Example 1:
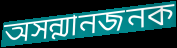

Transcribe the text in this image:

অসন্মানজনক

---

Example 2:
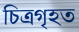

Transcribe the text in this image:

চিত্ৰগৃহত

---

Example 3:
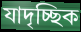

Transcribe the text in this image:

যাদৃচ্ছিক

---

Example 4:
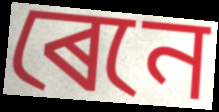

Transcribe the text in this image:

ৰেনে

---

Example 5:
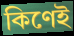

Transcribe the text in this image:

কিণেই